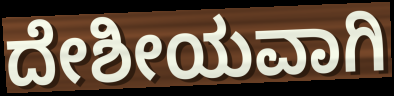
ದೇಶೀಯವಾಗಿ